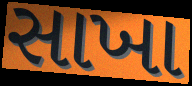
સાખા